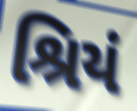
શ્રિયં